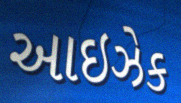
આઇઝેક